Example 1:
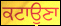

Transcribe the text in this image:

ਕਟਾਉਣਾ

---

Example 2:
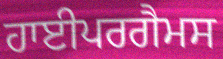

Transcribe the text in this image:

ਹਾਈਪਰਗੈਮਸ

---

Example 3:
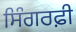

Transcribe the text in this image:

ਸਿੰਗਰਫ਼ੀ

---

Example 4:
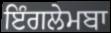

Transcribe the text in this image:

ਇੰਗਲੇਮਬਾ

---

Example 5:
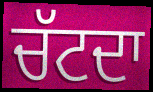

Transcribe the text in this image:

ਚੱਟਦਾ